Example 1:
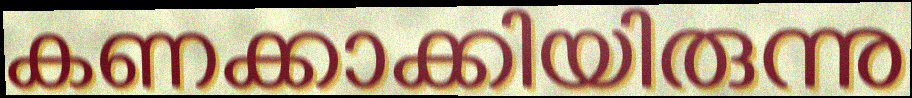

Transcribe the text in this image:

കണക്കാക്കിയിരുന്നു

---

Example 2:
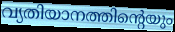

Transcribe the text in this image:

വ്യതിയാനത്തിന്റെയും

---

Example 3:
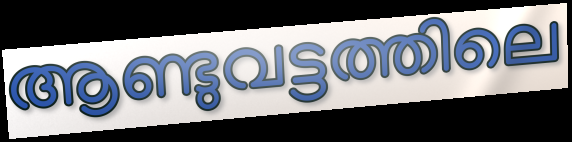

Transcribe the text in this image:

ആണ്ടുവട്ടത്തിലെ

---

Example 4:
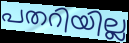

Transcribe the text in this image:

പതറിയില്ല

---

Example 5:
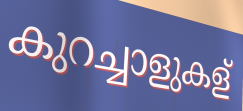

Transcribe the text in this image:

കുറച്ചാളുകള്